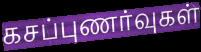
கசப்புணர்வுகள்